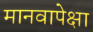
मानवापेक्षा